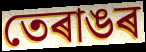
তেৰাঙৰ